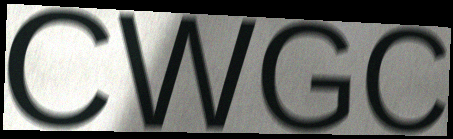
CWGC